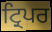
ਟ੍ਰਿਪਰ